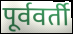
पूर्ववर्ती